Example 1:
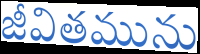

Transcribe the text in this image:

జీవితమును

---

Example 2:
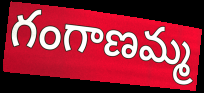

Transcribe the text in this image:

గంగాణమ్మ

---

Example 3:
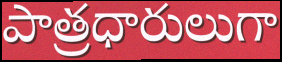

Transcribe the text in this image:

పాత్రధారులుగా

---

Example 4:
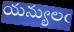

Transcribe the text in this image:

యన్యులఁ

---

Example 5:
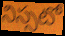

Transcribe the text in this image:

నిస్సటో